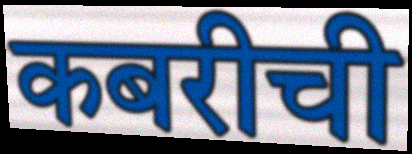
कबरीची